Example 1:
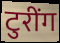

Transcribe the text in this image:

टुरींग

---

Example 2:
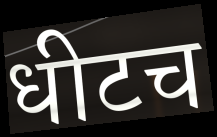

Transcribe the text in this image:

धीटच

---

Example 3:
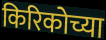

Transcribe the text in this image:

किरिकोच्या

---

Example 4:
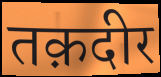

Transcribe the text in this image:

तक़दीर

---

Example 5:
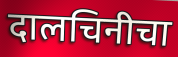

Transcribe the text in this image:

दालचिनीचा